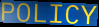
POLICY